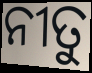
ନୀତୁ